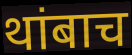
थांबाच